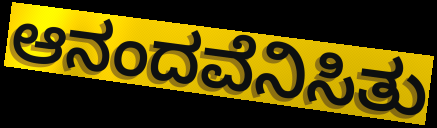
ಆನಂದವೆನಿಸಿತು